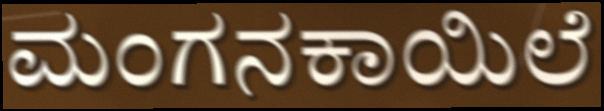
ಮಂಗನಕಾಯಿಲೆ